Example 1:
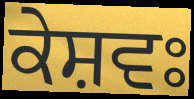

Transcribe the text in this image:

ਕੇਸ਼ਵਃ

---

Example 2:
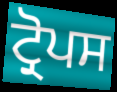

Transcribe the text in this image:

ਟ੍ਰੋਪਸ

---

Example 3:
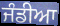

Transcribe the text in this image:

ਜੰਡੀਆ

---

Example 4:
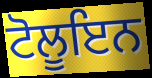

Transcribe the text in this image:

ਟੋਲੂਇਨ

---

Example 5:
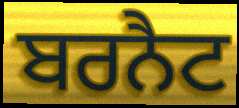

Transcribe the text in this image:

ਬਰਨੈਟ